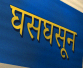
घसघसून